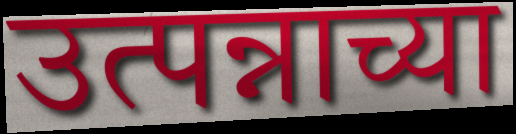
उत्पन्नाच्या